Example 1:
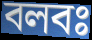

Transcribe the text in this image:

বলবঃ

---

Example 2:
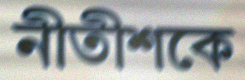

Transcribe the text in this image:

নীতীশকে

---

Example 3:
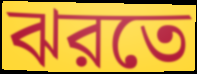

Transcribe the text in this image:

ঝরতে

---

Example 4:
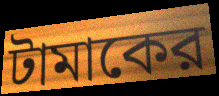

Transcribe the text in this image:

টামাকের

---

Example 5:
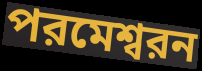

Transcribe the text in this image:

পরমেশ্বরন